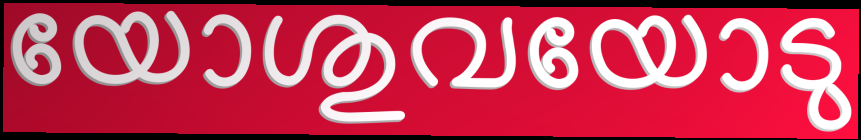
യോശുവയോടു